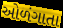
ઓળંગાતા